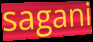
sagani